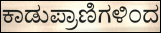
ಕಾಡುಪ್ರಾಣಿಗಳಿಂದ